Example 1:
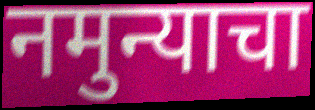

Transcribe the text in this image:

नमुन्याचा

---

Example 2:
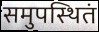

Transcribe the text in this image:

समुपस्थितं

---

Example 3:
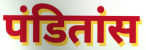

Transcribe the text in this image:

पंडितांस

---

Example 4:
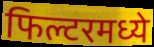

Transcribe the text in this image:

फिल्टरमध्ये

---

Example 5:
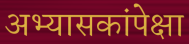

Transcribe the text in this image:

अभ्यासकांपेक्षा